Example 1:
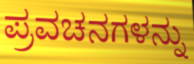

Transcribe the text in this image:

ಪ್ರವಚನಗಳನ್ನು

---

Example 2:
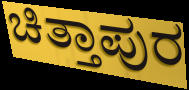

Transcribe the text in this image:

ಚಿತ್ತಾಪುರ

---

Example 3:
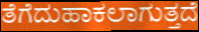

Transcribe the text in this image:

ತೆಗೆದುಹಾಕಲಾಗುತ್ತದೆ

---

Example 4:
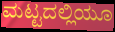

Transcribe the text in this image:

ಮಟ್ಟದಲ್ಲಿಯೂ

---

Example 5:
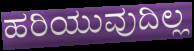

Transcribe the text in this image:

ಹರಿಯುವುದಿಲ್ಲ